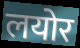
लयोर